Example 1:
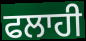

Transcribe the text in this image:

ਫਲਾਹੀ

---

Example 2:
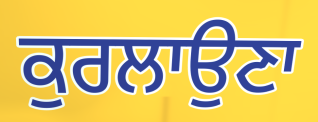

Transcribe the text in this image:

ਕੁਰਲਾਉਣਾ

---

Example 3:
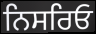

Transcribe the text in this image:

ਨਿਸਰਿਓ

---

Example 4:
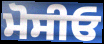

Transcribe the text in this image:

ਮੋਸੀਓ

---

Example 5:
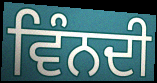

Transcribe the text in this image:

ਵਿੰਨਦੀ